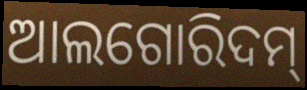
ଆଲଗୋରିଦମ୍